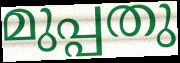
മുപ്പതു